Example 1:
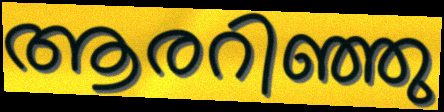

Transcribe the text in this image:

ആരറിഞ്ഞു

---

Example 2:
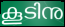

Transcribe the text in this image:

കൂടിനു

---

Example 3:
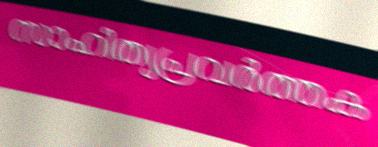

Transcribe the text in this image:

സാഹിത്യപ്രവർത്തക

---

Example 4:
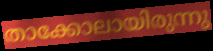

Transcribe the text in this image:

താക്കോലായിരുന്നു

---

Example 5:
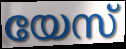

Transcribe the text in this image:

യേസ്